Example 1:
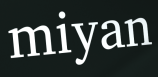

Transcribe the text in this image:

miyan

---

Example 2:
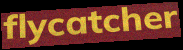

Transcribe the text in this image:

flycatcher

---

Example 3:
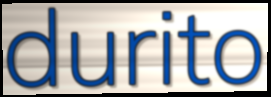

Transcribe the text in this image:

durito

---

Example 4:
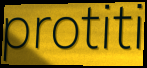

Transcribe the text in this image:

protiti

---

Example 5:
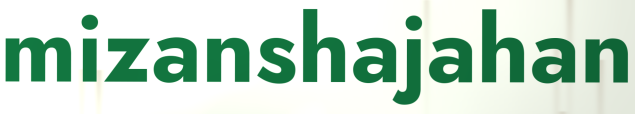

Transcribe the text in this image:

mizanshajahan